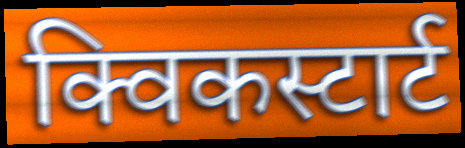
क्विकस्टार्ट